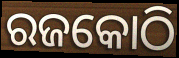
ରଜକୋଠି